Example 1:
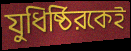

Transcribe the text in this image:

যুধিষ্ঠিরকেই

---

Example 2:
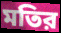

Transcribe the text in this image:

মতির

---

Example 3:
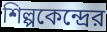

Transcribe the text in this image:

শিল্পকেন্দ্রের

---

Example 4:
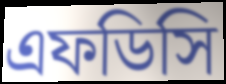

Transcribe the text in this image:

এফডিসি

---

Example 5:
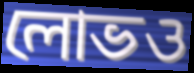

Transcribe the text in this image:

লোভও